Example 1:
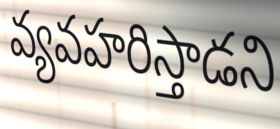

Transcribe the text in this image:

వ్యవహరిస్తాడని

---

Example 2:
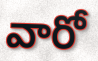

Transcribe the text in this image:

వారో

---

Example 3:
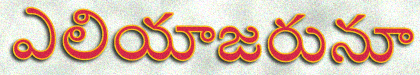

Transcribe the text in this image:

ఎలియాజరునూ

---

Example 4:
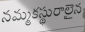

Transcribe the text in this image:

నమ్మకస్థురాలైన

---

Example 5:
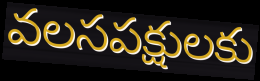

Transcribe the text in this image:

వలసపక్షులకు